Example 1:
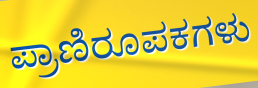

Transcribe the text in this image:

ಪ್ರಾಣಿರೂಪಕಗಳು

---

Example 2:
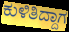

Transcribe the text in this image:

ಕುಳಿತಿದ್ದಾಗ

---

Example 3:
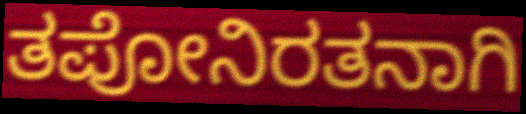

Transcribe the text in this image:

ತಪೋನಿರತನಾಗಿ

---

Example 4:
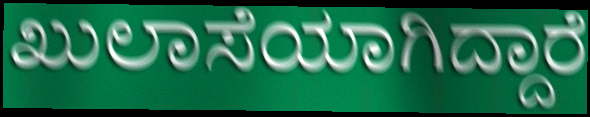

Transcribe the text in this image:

ಖುಲಾಸೆಯಾಗಿದ್ದಾರೆ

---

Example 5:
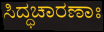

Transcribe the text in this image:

ಸಿದ್ಧಚಾರಣಾಃ